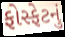
ફોસ્ફેટનું